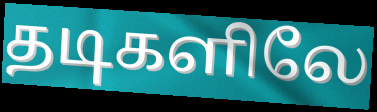
தடிகளிலே